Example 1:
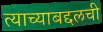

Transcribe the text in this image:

त्याच्याबद्दलची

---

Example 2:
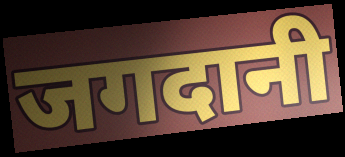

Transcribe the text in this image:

जगदानी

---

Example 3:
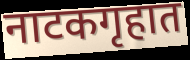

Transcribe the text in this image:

नाटकगृहात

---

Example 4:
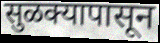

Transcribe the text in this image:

सुळक्यापासून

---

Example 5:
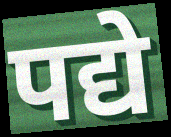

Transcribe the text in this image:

पद्ये